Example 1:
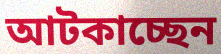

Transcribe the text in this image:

আটকাচ্ছেন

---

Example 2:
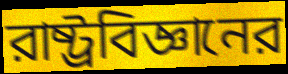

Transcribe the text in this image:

রাষ্ট্রবিজ্ঞানের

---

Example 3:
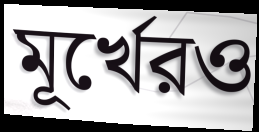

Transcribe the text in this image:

মূর্খেরও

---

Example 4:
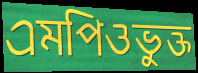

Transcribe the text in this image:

এমপিওভুক্ত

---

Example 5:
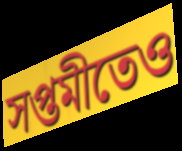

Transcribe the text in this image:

সপ্তমীতেও